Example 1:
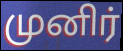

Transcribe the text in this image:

முனிர்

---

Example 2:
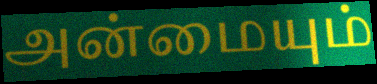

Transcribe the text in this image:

அன்மையும்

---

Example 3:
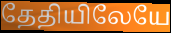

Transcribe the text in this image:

தேதியிலேயே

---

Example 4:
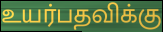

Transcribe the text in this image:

உயர்பதவிக்கு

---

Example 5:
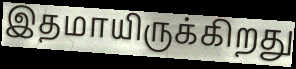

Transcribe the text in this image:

இதமாயிருக்கிறது